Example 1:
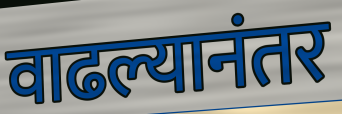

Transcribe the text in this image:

वाढल्यानंतर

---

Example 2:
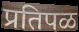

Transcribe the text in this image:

प्रतिपळ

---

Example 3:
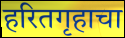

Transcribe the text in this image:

हरितगृहाचा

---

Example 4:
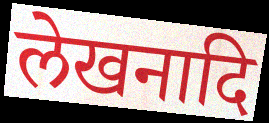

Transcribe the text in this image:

लेखनादि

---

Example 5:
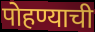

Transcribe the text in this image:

पोहण्याची